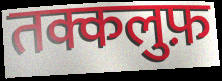
तक्कलुफ़